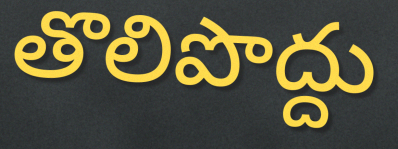
తొలిపొద్దు